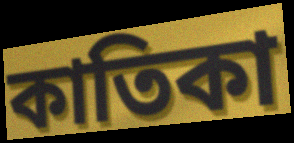
কাতিকা